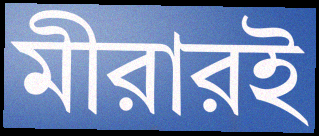
মীরারই